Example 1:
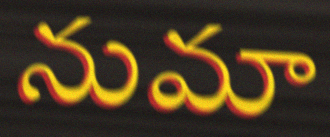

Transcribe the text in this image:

నుమా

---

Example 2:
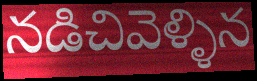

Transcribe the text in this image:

నడిచివెళ్ళిన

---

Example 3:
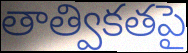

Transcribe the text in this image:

తాత్వికతపై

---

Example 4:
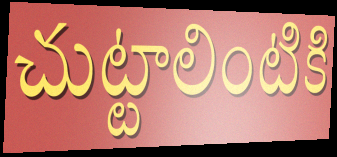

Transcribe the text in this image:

చుట్టాలింటికి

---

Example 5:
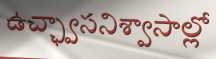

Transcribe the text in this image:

ఉచ్ఛ్వాసనిశ్వాసాల్లో